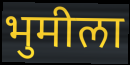
भुमीला